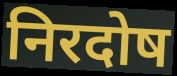
निरदोष